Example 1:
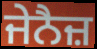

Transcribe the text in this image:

ਜੇਨੈਜ਼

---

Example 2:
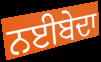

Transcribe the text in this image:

ਨਈਬੇਦਾ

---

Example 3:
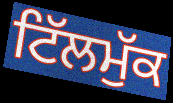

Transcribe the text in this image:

ਟਿੱਲਮੁੱਕ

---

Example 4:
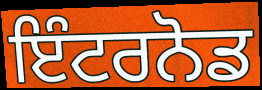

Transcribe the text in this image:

ਇੰਟਰਨੋਡ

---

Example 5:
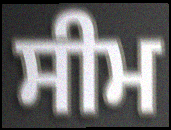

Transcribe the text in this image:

ਸੀਮ